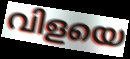
വിളയെ